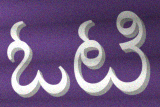
ಓಟಿ